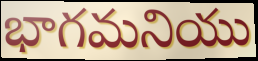
భాగమనియు